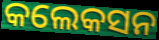
କଲେକସନ